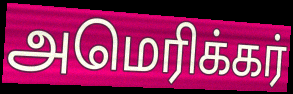
அமெரிக்கர்